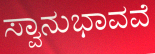
ಸ್ವಾನುಭಾವವೆ